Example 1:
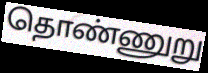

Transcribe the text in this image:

தொண்ணுறு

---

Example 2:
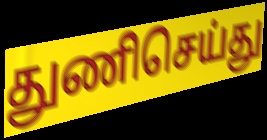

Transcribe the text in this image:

துணிசெய்து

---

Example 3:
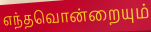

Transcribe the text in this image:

எந்தவொன்றையும்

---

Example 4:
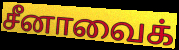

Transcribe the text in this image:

சீனாவைக்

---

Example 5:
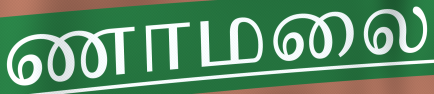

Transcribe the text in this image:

ணாமலை